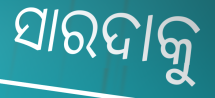
ସାରଦାକୁ